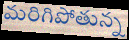
మరిగిపోతున్న